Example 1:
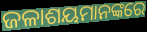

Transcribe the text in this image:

ଜଳାଶୟମାନଙ୍କରେ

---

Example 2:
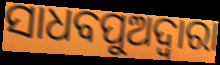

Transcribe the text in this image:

ସାଧବପୁଅଦ୍ୱାରା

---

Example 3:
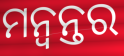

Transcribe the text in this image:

ମନ୍ବନ୍ତର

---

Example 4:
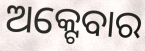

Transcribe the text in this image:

ଅକ୍ଟେବାର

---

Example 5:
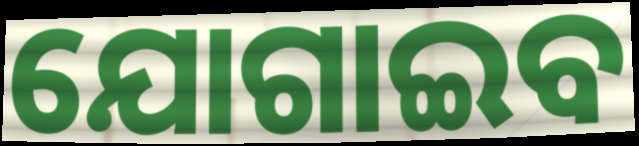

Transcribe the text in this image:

ଯୋଗାଇବ